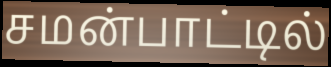
சமன்பாட்டில்